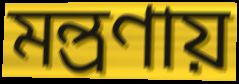
মন্ত্রণায়